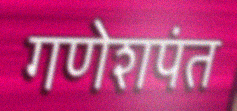
गणेशपंत